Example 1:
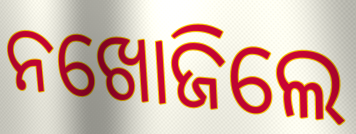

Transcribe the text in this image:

ନଖୋଜିଲେ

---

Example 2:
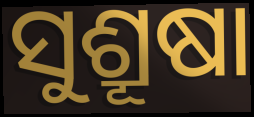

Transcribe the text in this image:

ସୁଶ୍ରୂଷା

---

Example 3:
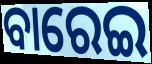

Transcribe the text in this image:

ବାରେଇ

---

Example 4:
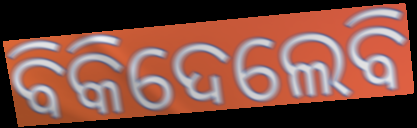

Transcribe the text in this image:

ବିକିଦେଲେବି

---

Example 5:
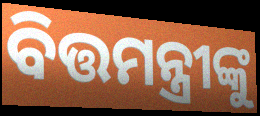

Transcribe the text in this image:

ବିତ୍ତମନ୍ତ୍ରୀଙ୍କୁ